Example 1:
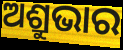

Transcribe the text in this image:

ଅଶ୍ରୁଭାର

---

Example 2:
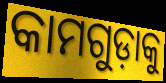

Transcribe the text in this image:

କାମଗୁଡ଼ାକୁ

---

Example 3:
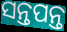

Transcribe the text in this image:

ସନ୍ତପନ୍ତ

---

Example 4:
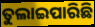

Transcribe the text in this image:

ତୁଲାଇପାରିଛି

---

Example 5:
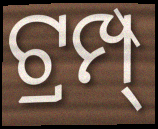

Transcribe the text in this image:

ଟ୍ରମ୍ପ୍